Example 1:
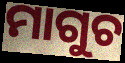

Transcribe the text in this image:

ମାଗୁଚ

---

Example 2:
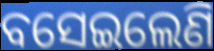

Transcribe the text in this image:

ବସେଇଲେଣି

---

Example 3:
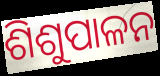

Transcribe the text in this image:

ଶିଶୁପାଳନ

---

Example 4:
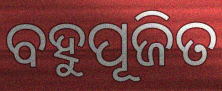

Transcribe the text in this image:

ବହୁପୂଜିତ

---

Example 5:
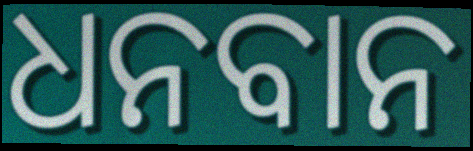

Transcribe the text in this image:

ଧନବାନ